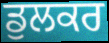
ਡੁਲਕਰ